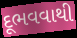
દૂભવવાથી